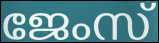
ജേംസ്